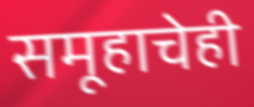
समूहाचेही